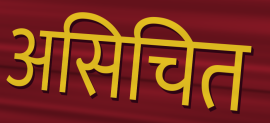
असिचित